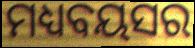
ମଧ୍ୟବୟସର